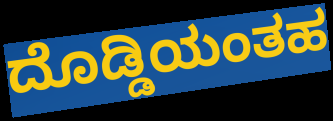
ದೊಡ್ಡಿಯಂತಹ